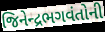
જિનેન્દ્રભગવંતોની